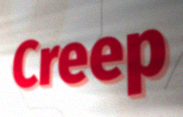
Creep